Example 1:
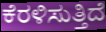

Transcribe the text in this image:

ಕೆರಳಿಸುತ್ತಿದೆ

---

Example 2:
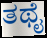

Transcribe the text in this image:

ತಥೈ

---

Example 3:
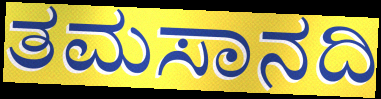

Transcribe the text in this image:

ತಮಸಾನದಿ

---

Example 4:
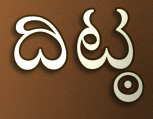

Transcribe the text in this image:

ದಿಟ್ಠ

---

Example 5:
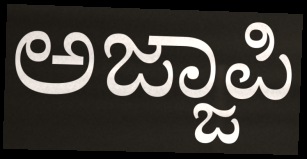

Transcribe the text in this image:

ಅಜ್ಜಾಪಿ